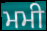
ਮਮੀ